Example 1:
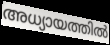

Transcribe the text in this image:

അധ്യായത്തിൽ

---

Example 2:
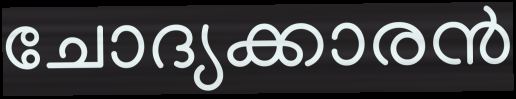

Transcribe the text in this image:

ചോദ്യക്കാരൻ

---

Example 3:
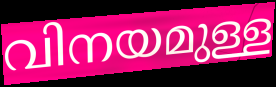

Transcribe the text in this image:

വിനയമുള്ള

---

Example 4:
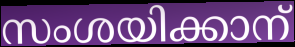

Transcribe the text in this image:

സംശയിക്കാന്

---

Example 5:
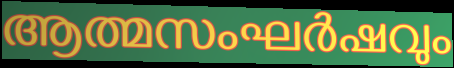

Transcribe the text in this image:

ആത്മസംഘർഷവും